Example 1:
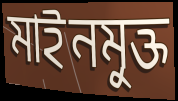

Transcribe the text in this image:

মাইনমুক্ত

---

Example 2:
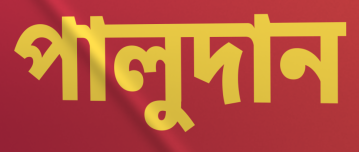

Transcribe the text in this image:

পালুদান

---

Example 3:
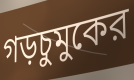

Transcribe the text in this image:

গড়চুমুকের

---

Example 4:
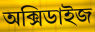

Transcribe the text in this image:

অক্সিডাইজ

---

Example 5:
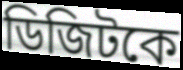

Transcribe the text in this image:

ডিজিটকে